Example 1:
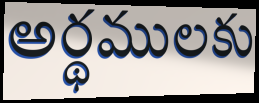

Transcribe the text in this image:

అర్థములకు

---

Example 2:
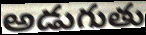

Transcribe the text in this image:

అడుగుతు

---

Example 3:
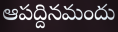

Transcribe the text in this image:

ఆపద్దినమందు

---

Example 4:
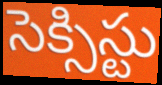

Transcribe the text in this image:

సెక్సిస్టు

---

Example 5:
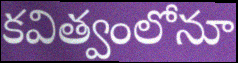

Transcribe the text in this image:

కవిత్వంలోనూ